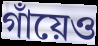
গাঁয়েও